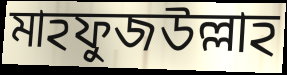
মাহফুজউল্লাহ